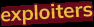
exploiters